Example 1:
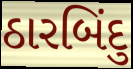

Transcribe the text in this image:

ઠારબિંદુ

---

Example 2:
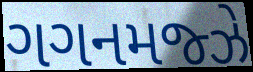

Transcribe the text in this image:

ગગનમજ્ઝે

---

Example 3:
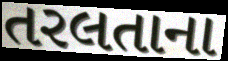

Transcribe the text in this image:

તરલતાના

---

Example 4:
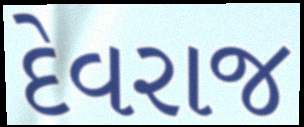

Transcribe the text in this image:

દેવરાજ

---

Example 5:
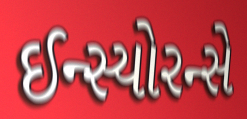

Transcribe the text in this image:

ઈન્સ્યોરન્સે